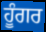
ਹੂੰਗਰ